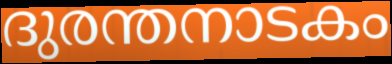
ദുരന്തനാടകം